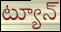
ట్యూన్